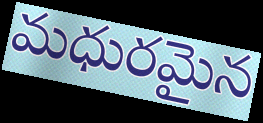
మధురమైన